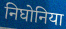
निघोनिया